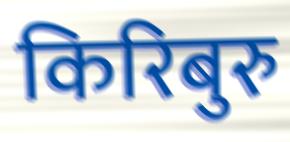
किरिबुरु